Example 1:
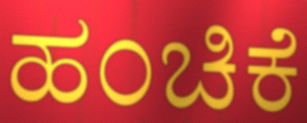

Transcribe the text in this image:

ಹಂಚಿಕೆ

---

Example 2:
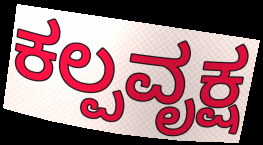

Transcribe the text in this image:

ಕಲ್ಪವೃಕ್ಷ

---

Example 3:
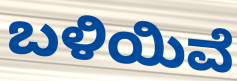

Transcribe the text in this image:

ಬಳಿಯಿವೆ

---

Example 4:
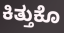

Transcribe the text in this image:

ಕಿತ್ತುಕೊ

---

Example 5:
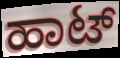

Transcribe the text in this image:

ಹಾಟ್